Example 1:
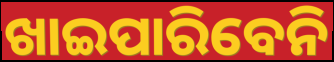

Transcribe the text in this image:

ଖାଇପାରିବେନି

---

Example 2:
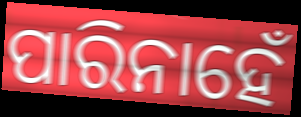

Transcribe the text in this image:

ପାରିନାହେଁ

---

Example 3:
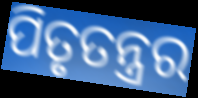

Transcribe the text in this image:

ପିତୃତନ୍ତ୍ରର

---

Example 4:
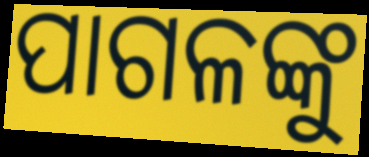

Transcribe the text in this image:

ପାଗଳଙ୍କୁ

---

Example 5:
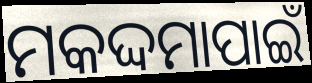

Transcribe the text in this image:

ମକଦ୍ଦମାପାଇଁ